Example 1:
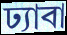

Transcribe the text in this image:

ঢ্যাবা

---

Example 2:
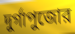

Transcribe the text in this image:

দুর্গাপুজোর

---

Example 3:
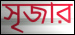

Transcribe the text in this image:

সৃজার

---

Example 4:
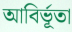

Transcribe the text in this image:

আবির্ভূতা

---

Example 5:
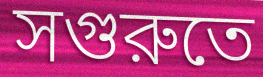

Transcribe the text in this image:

সগুরুতে